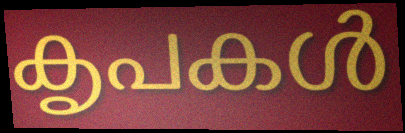
കൃപകൾ